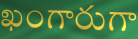
ఖంగారుగా